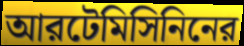
আরটেমিসিনিনের